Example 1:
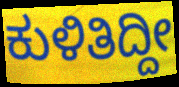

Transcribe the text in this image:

ಕುಳಿತಿದ್ದೀ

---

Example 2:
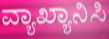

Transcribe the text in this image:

ವ್ಯಾಖ್ಯಾನಿಸಿ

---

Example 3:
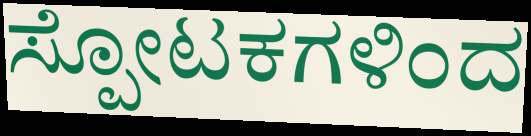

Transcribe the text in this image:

ಸ್ಪೋಟಕಗಳಿಂದ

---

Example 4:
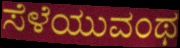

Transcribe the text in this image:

ಸೆಳೆಯುವಂಥ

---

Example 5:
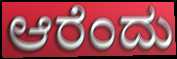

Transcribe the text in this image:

ಆರೆಂದು